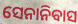
ସେନାନିବାସ